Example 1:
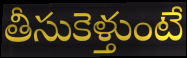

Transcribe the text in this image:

తీసుకెళ్తుంటే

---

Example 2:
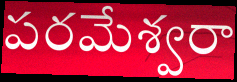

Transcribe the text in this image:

పరమేశ్వరా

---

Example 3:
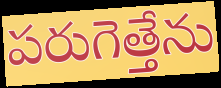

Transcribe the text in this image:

పరుగెత్తేను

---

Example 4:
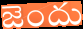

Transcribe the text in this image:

జెందు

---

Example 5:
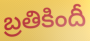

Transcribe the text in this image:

బ్రతికిందీ